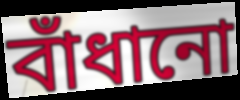
বাঁধানো